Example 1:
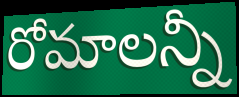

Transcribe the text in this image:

రోమాలన్నీ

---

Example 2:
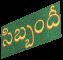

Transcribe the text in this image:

సిబ్బందీ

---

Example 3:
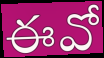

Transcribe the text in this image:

ఈవో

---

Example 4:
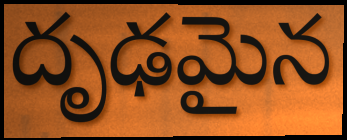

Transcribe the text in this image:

దృఢమైన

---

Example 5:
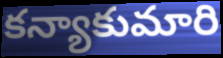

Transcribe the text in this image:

కన్యాకుమారి